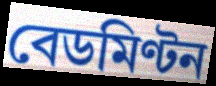
বেডমিণ্টন